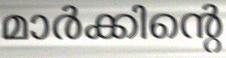
മാർക്കിന്റെ